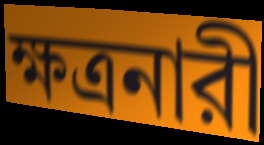
ক্ষত্রনারী